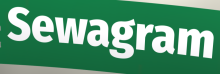
Sewagram